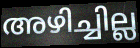
അഴിച്ചില്ല